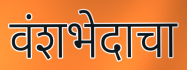
वंशभेदाचा